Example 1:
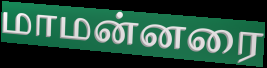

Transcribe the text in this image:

மாமன்னரை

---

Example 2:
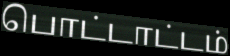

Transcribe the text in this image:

பொட்டாட்டம்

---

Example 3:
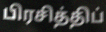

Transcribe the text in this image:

பிரசித்திப்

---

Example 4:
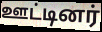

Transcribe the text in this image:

ஊட்டினர்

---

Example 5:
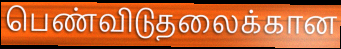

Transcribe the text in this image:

பெண்விடுதலைக்கான